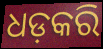
ଧଡ଼କରି